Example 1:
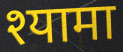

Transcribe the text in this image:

श्यामा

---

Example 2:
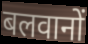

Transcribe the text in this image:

बलवानों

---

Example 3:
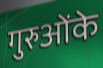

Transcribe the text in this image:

गुरुओंके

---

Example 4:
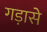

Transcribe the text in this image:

गड़ासे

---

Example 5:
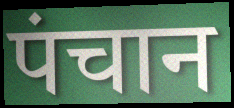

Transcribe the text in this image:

पंचान